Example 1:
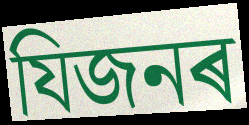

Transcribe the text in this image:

যিজনৰ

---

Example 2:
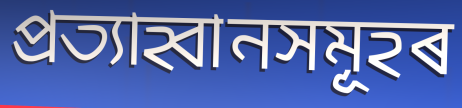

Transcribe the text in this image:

প্ৰত্যাহ্বানসমূহৰ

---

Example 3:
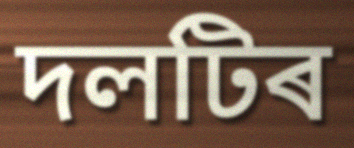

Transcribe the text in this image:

দলটিৰ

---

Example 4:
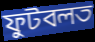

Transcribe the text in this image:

ফুটবলত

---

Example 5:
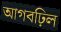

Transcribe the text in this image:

আগবঢ়িল